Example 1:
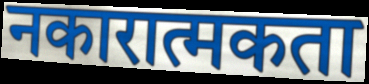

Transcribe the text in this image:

नकारात्मकता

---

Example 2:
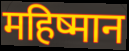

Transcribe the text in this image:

महिष्मान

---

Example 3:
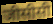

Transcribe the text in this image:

जीसीसी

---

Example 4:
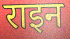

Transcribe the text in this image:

राइन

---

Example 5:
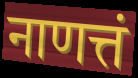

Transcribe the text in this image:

नाणत्तं